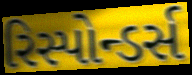
રિસ્પોન્ડર્સ